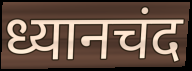
ध्यानचंद